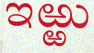
ఇఱ్ఱు